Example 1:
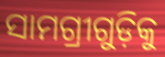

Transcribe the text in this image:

ସାମଗ୍ରୀଗୁଡ଼ିକୁ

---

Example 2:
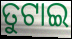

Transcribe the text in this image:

ତୁଟାଇ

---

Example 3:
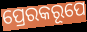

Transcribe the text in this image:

ପ୍ରେରକରୂପେ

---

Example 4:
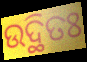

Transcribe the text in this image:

ଉଦ୍ଥିତଃ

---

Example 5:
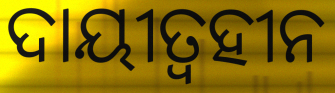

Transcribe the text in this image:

ଦାୟୀତ୍ୱହୀନ